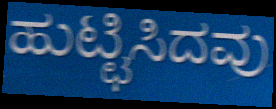
ಹುಟ್ಟಿಸಿದವು